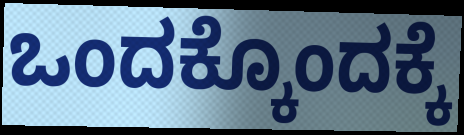
ಒಂದಕ್ಕೊಂದಕ್ಕೆ